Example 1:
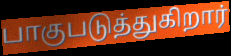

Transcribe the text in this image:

பாகுபடுத்துகிறார்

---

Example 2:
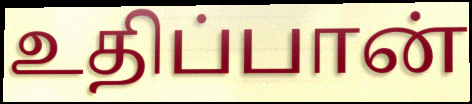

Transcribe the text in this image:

உதிப்பான்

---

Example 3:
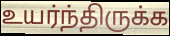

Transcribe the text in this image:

உயர்ந்திருக்க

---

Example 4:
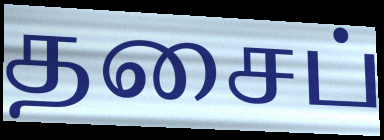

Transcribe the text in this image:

தசைப்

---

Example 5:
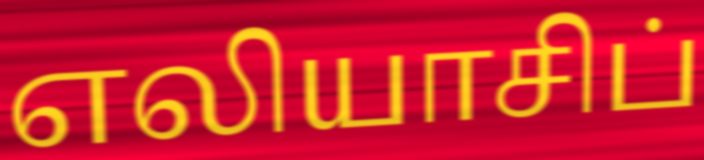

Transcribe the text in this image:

எலியாசிப்